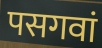
पसगवां